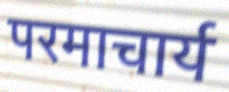
परमाचार्य